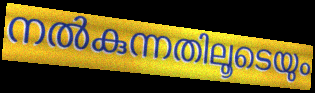
നൽകുന്നതിലൂടെയും